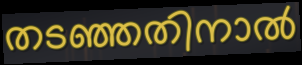
തടഞ്ഞതിനാൽ